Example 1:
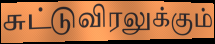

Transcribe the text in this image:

சுட்டுவிரலுக்கும்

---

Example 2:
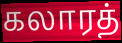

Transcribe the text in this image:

கலாரத்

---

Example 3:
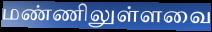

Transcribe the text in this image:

மண்ணிலுள்ளவை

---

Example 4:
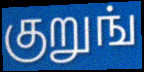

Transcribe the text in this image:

குறுங்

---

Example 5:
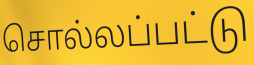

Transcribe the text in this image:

சொல்லப்பட்டு